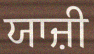
ਯਾਜ਼ੀ